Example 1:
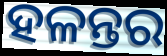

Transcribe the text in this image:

ହଳନ୍ତର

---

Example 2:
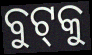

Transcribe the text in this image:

ବୁଟ୍‌କୁ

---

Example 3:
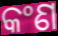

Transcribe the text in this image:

କଂଣ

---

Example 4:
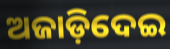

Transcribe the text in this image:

ଅଜାଡ଼ିଦେଇ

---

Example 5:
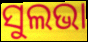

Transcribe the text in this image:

ସୁଲଭା